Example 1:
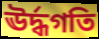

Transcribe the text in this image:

ঊর্দ্ধগতি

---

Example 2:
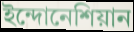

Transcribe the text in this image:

ইন্দোনেশিয়ান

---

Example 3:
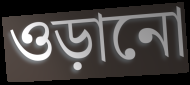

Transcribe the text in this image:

ওড়ানো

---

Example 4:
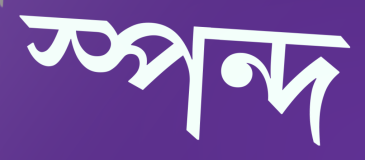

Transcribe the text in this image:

স্পন্দ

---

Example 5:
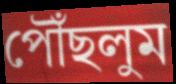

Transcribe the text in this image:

পৌঁছলুম